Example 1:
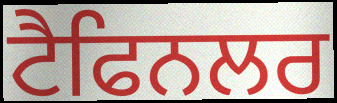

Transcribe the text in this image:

ਟੈਫਿਨਲਰ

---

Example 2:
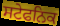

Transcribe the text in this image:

ਸਟੇਫਨਿਕ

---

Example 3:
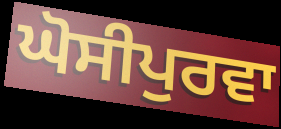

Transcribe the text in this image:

ਘੋਸੀਪੁਰਵਾ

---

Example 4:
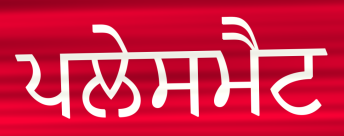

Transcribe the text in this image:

ਪਲੇਸਮੈਟ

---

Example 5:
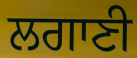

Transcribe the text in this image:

ਲਗਾਣੀ